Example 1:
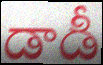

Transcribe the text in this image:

డాడీ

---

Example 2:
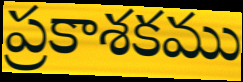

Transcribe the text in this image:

ప్రకాశకము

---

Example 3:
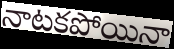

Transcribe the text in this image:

నాటకపోయినా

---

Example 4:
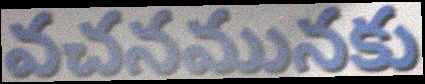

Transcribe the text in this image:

వచనమునకు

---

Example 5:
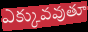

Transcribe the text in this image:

ఎక్కువవుతూ